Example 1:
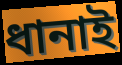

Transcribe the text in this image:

ধানাই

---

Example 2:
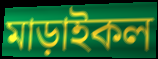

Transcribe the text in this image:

মাড়াইকল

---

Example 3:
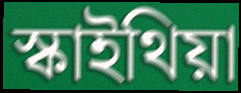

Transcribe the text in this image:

স্কাইথিয়া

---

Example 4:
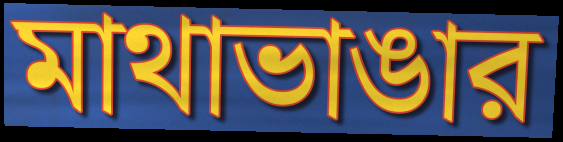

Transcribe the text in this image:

মাথাভাঙার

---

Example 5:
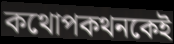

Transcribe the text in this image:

কথোপকথনকেই